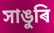
সাঙুৰি